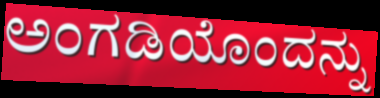
ಅಂಗಡಿಯೊಂದನ್ನು